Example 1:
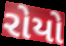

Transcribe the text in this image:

રોયો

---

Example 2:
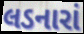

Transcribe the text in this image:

લડનારાં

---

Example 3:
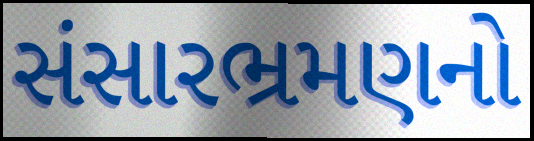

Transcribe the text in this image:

સંસારભ્રમણનો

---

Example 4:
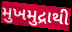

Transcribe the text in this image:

મુખમુદ્રાથી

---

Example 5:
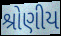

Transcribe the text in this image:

શ્રોણીય